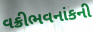
વક્રીભવનાંકની